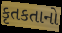
કૃતકતાનો